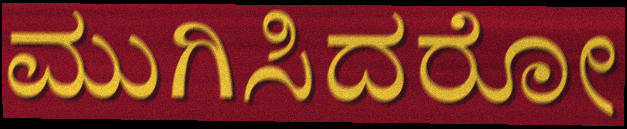
ಮುಗಿಸಿದರೋ